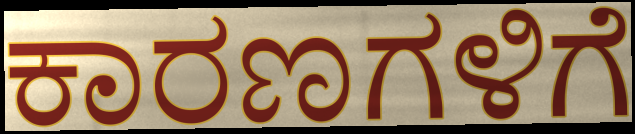
ಕಾರಣಗಳಿಗೆ